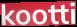
kootti